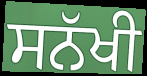
ਸਨੱਖੀ